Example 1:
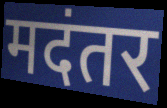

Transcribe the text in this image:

मदंतर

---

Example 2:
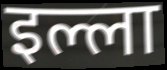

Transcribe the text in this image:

इल्ला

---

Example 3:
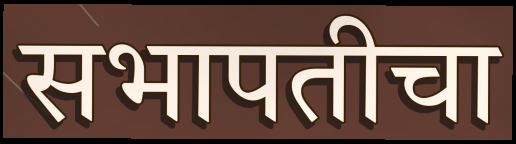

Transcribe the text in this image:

सभापतीचा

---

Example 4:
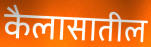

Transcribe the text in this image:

कैलासातील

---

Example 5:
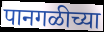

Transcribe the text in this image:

पानगळीच्या